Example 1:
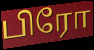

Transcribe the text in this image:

பிரோ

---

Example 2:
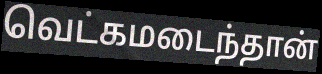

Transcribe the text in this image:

வெட்கமடைந்தான்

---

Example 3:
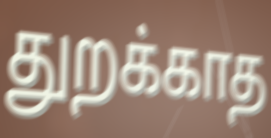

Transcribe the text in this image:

துறக்காத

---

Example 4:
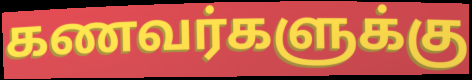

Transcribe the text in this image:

கணவர்களுக்கு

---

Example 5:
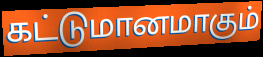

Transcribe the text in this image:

கட்டுமானமாகும்